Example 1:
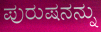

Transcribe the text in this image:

ಪುರುಷನನ್ನು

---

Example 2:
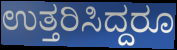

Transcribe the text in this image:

ಉತ್ತರಿಸಿದ್ದರೂ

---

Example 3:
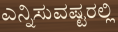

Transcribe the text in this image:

ಎನ್ನಿಸುವಷ್ಟರಲ್ಲಿ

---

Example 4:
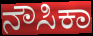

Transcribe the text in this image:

ನೌಸಿಕಾ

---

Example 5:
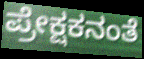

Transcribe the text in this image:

ಪ್ರೇಕ್ಷಕನಂತೆ